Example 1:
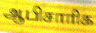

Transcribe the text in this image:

ஆபிசாரிக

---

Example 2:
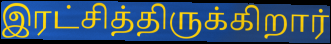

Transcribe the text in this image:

இரட்சித்திருக்கிறார்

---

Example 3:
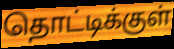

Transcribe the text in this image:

தொட்டிக்குள்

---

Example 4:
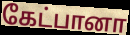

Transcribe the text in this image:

கேட்பானா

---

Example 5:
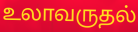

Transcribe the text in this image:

உலாவருதல்